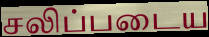
சலிப்படைய